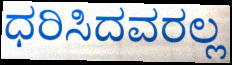
ಧರಿಸಿದವರಲ್ಲ